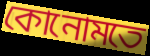
কোনোমতে